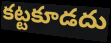
కట్టకూడదు